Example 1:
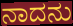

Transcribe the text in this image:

ನಾದನು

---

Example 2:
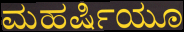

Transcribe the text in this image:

ಮಹರ್ಷಿಯೂ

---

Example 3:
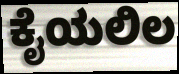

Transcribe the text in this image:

ಕೈಯಲಿಲ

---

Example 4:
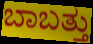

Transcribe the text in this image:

ಬಾಬತ್ತು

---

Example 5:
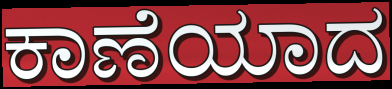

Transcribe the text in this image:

ಕಾಣೆಯಾದ